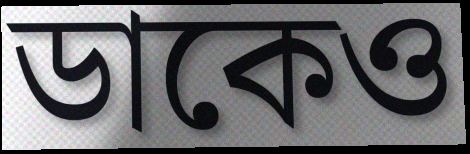
ডাকেও